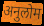
अनुलोम